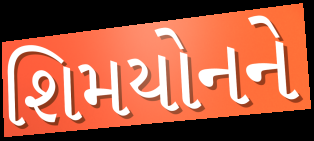
શિમયોનને